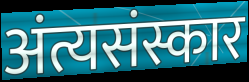
अंत्यसंस्कार